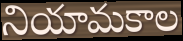
నియామకాల